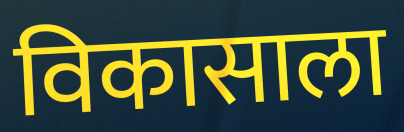
विकासाला